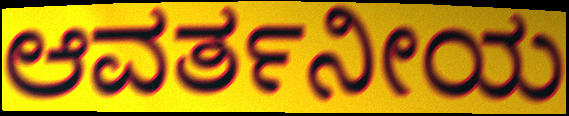
ಆವರ್ತನೀಯ